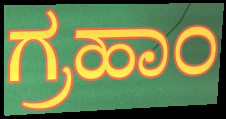
ಗ್ರಹಾಂ